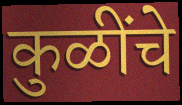
कुळींचे